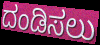
ದಂಡಿಸಲು